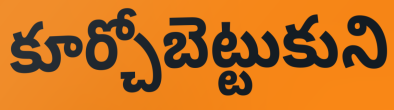
కూర్చోబెట్టుకుని